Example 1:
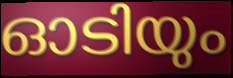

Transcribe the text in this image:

ഓടിയും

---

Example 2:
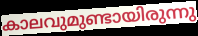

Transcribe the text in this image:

കാലവുമുണ്ടായിരുന്നു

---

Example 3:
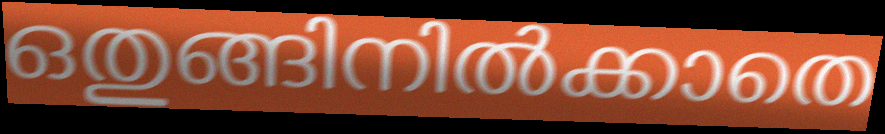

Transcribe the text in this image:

ഒതുങ്ങിനിൽക്കാതെ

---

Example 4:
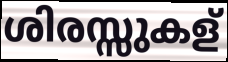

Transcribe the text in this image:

ശിരസ്സുകള്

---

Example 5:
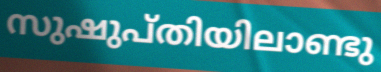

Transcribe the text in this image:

സുഷുപ്തിയിലാണ്ടു